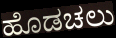
ಹೊಡಚಲು